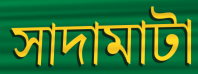
সাদামাটা